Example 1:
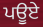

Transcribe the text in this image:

ਪਊਏ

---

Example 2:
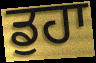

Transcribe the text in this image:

ਡੁਹਾ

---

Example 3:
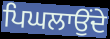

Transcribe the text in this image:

ਪਿਘਲਾਉਂਦੇ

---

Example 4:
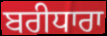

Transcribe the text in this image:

ਬਰੀਧਾਰਾ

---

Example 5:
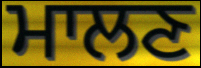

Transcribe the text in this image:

ਮਾਲਣ